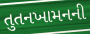
તુતનખામનની